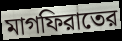
মাগফিরাতের